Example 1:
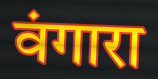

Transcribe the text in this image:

वंगारा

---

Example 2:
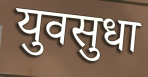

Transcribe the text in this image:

युवसुधा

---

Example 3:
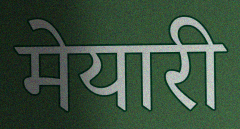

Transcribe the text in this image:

मेयारी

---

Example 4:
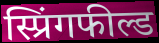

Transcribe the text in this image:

स्प्रिंगफील्ड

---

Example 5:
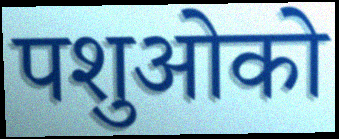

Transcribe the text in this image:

पशुओको